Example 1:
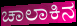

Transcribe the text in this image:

ಚಾಲಾಕಿನ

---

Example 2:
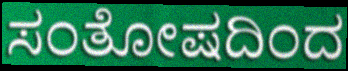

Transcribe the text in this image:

ಸಂತೋಷದಿಂದ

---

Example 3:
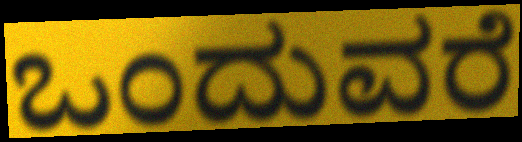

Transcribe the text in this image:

ಒಂದುವರೆ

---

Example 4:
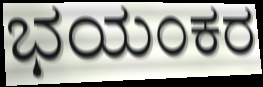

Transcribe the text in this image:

ಭಯಂಕರ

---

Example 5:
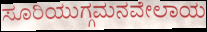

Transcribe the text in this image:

ಸೂರಿಯುಗ್ಗಮನವೇಲಾಯ